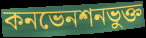
কনভেনশনভুক্ত